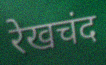
रेखचंद